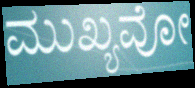
ಮುಖ್ಯವೋ